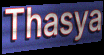
Thasya